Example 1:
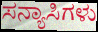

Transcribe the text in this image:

ಸನ್ಯಾಸಿಗಳು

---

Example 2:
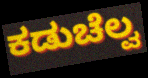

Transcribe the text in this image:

ಕಡುಚೆಲ್ವ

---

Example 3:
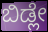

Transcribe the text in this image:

ಬಿಡ್ಲೇ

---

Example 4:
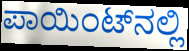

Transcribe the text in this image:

ಪಾಯಿಂಟ್‌ನಲ್ಲಿ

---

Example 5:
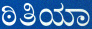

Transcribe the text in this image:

ಠಿತಿಯಾ